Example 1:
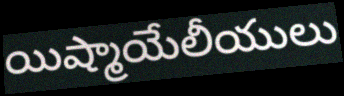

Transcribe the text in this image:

యిష్మాయేలీయులు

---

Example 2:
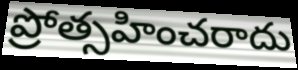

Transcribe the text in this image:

ప్రోత్సహించరాదు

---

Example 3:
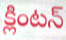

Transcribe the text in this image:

క్లింటన్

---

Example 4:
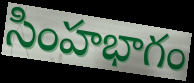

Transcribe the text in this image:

సింహభాగం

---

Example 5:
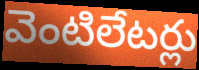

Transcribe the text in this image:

వెంటిలేటర్లు